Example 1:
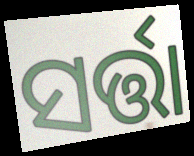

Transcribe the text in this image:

ସର୍ତ୍ତା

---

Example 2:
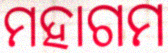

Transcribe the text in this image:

ମହାଗମ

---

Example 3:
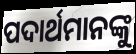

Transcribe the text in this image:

ପଦାର୍ଥମାନଙ୍କୁ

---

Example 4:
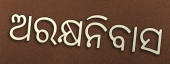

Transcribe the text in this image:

ଅରକ୍ଷନିବାସ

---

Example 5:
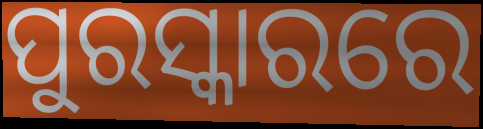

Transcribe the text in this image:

ପୁରସ୍କାରରେ